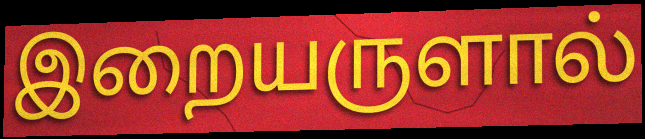
இறையருளால்